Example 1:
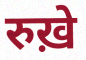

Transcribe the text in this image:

रुख़े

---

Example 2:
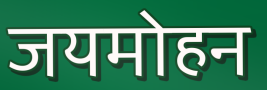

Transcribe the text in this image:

जयमोहन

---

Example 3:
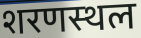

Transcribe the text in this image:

शरणस्थल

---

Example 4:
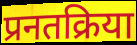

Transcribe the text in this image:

प्रनतक्रिया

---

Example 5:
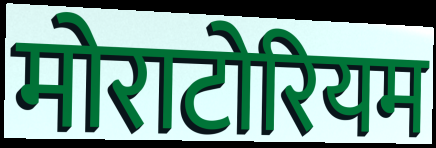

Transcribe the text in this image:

मोराटोरियम